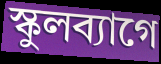
স্কুলব্যাগে